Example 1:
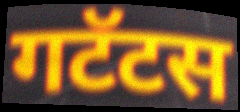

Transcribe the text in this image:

गटॅटस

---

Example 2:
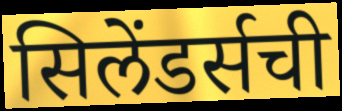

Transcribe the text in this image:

सिलेंडर्सची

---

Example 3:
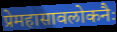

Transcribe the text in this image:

प्रेमहासावलोकनैः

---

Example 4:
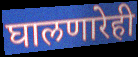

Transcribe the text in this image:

घालणारेही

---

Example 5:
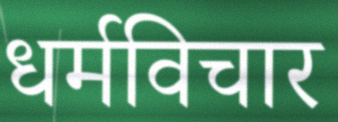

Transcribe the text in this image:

धर्मविचार